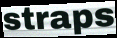
straps